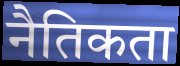
नैतिकता